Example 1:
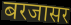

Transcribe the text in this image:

बरजासर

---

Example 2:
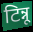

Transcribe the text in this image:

टिन्नू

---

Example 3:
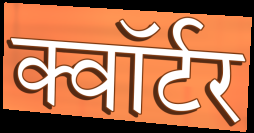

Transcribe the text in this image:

क्‍वॉर्टर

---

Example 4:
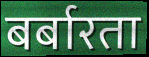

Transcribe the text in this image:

बर्बारता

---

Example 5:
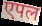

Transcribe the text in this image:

एपल